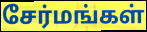
சேர்மங்கள்